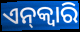
ଏନ୍‌କ୍ୱାରି